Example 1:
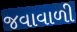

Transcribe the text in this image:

જવાવાળી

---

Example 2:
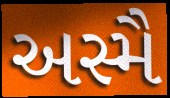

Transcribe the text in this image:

અસ્મૈ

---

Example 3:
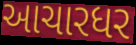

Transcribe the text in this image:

આચારધર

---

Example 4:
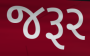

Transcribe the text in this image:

જરૂર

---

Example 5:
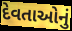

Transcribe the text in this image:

દેવતાઓનું